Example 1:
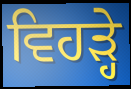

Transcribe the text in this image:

ਵਿਹੜ੍ਹੇ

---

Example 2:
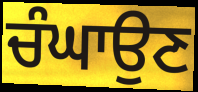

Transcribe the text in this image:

ਚੰਘਾਉਣ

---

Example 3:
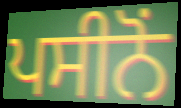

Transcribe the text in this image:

ਪਸੀਨੋਂ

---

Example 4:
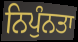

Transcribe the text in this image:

ਨਿਪੁੰਨਤਾ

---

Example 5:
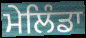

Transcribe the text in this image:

ਮੇਲਿੰਡਾ